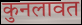
कुनलावत